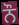
ਨੌ